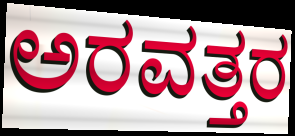
ಅರವತ್ತರ